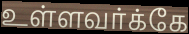
உள்ளவர்க்கே